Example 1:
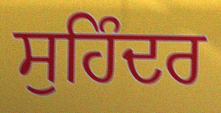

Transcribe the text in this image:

ਸੁਹਿੰਦਰ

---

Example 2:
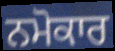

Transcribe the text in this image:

ਨਮੋਕਾਰ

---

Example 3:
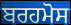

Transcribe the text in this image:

ਬਰਹਮੋਸ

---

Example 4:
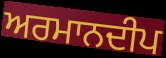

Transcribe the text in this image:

ਅਰਮਾਨਦੀਪ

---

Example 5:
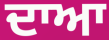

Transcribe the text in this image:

ਦਾਆ